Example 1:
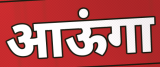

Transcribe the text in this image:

आऊंगा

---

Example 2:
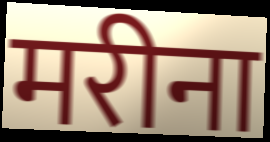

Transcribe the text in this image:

मरीना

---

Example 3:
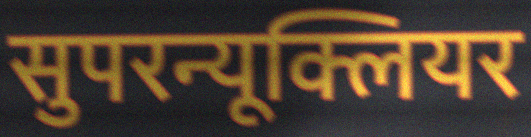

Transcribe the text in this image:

सुपरन्यूक्लियर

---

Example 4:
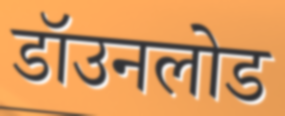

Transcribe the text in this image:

डॉउनलोड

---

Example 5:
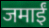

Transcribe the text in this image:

जमाईं